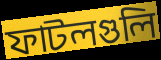
ফাটলগুলি